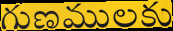
గుణములకు